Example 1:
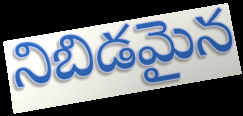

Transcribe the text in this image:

నిబిడమైన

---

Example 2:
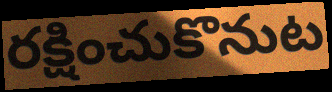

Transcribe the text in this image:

రక్షించుకొనుట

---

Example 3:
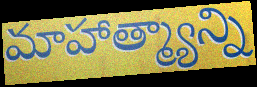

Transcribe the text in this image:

మాహాత్మ్యాన్ని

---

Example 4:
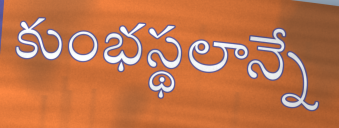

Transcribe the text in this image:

కుంభస్థలాన్నే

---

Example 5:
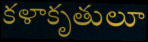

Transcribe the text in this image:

కళాకృతులూ